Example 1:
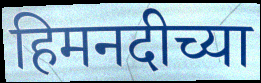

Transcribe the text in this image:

हिमनदीच्या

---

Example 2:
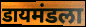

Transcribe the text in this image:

डायमंडला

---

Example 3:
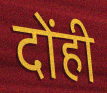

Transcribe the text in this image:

दोंही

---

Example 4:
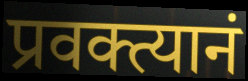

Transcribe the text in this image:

प्रवक्त्यानं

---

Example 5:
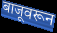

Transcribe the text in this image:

बाजूवरून